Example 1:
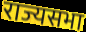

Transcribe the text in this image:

राज्यसभा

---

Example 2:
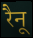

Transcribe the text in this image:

रैनू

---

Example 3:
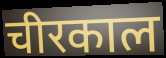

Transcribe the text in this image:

चीरकाल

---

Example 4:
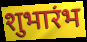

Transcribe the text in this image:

शुभारंभ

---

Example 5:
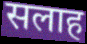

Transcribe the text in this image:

सलाह